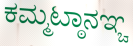
ಕಮ್ಮಟ್ಠಾನಞ್ಚ